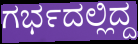
ಗರ್ಭದಲ್ಲಿದ್ದ